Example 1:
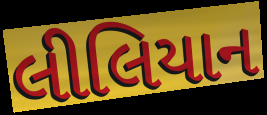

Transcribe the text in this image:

લીલિયાન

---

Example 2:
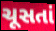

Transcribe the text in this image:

ચૂસતાં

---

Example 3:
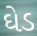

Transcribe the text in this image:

ઘેડ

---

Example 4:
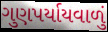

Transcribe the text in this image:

ગુણપર્યાયવાળું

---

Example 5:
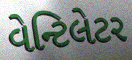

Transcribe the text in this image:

વેન્ટિલેટર